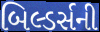
બિલ્ડર્સની